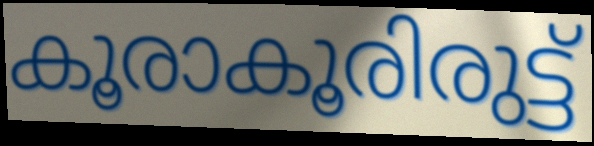
കൂരാകൂരിരുട്ട്